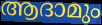
ആദാമും